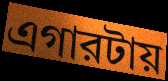
এগারটায়